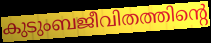
കുടുംബജീവിതത്തിന്റെ